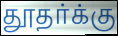
தூதர்க்கு